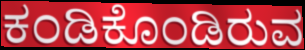
ಕಂಡಿಕೊಂಡಿರುವ